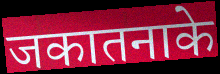
जकातनाके